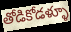
తోడికోడళ్ళూ